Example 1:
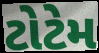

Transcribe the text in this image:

ટોટેમ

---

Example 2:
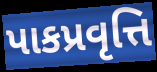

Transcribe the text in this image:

પાકપ્રવૃત્તિ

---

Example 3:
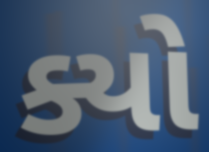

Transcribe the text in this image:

ક્યો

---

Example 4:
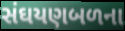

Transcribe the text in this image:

સંઘયણબળના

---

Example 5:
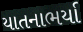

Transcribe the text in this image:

યાતનાભર્યા